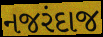
નજરંદાજ